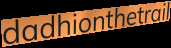
dadhionthetrail